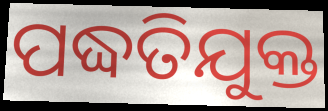
ପଦ୍ଧତିଯୁକ୍ତ